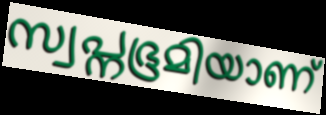
സ്വപ്നഭൂമിയാണ്